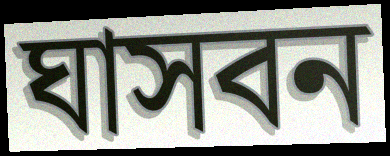
ঘাসবন